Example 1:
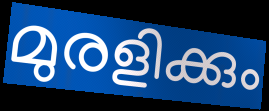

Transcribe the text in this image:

മുരളിക്കും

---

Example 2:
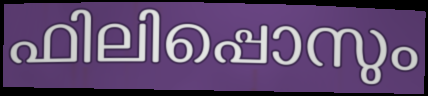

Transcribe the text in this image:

ഫിലിപ്പൊസും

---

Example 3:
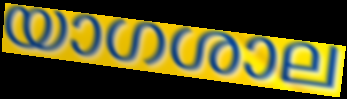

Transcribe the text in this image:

യാഗശാല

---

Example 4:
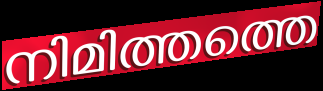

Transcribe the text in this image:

നിമിത്തത്തെ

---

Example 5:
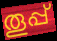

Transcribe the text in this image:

തൂപ്പ്